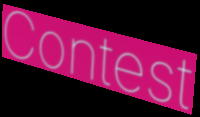
Contest